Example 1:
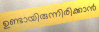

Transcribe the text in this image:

ഉണ്ടായിരുന്നിരിക്കാൻ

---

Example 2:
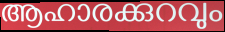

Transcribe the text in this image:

ആഹാരക്കുറവും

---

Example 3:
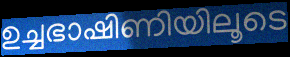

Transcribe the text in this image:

ഉച്ചഭാഷിണിയിലൂടെ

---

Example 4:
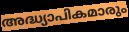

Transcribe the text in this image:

അദ്ധ്യാപികമാരും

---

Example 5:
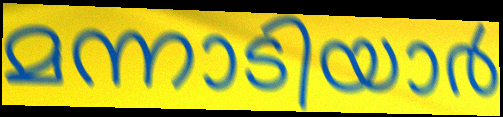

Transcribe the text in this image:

മന്നാടിയാർ